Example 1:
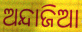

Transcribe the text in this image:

ଅନ୍ଦାଜିଆ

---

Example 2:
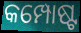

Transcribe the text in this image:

କମ୍ପୋଷ୍ଟ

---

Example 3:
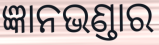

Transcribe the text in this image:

ଜ୍ଞାନଭଣ୍ଡାର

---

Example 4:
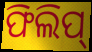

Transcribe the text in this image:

ଫିଲିପ୍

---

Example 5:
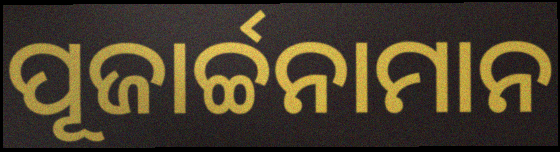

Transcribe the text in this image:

ପୂଜାର୍ଚ୍ଚନାମାନ